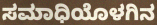
ಸಮಾಧಿಯೊಳಗಿನ